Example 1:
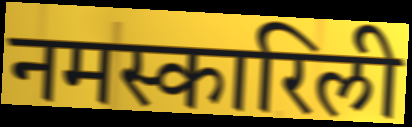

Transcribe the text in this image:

नमस्कारिली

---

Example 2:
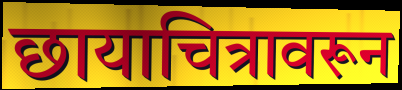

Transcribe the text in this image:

छायाचित्रावरून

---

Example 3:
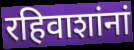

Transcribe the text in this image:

रहिवाशांनां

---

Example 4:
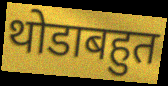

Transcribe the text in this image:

थोडाबहुत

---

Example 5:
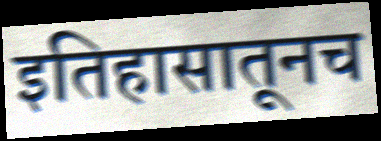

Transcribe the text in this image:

इतिहासातूनच